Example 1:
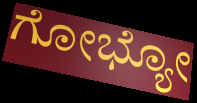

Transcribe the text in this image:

ಗೋಭ್ಯೋ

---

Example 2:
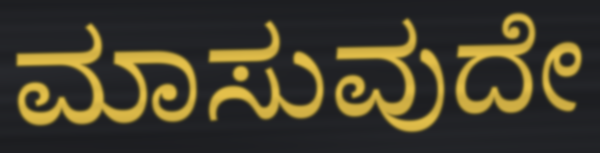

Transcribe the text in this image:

ಮಾಸುವುದೇ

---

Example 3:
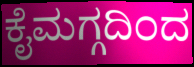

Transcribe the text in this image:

ಕೈಮಗ್ಗದಿಂದ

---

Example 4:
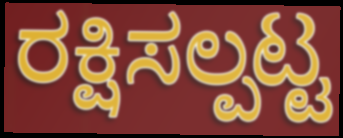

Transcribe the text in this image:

ರಕ್ಷಿಸಲ್ಪಟ್ಟ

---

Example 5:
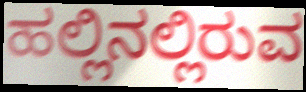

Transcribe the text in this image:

ಹಲ್ಲಿನಲ್ಲಿರುವ